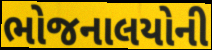
ભોજનાલયોની